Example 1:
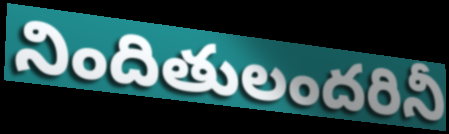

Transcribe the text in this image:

నిందితులందరినీ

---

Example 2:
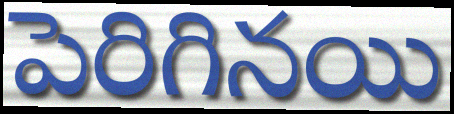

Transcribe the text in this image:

పెరిగినయి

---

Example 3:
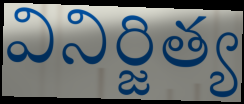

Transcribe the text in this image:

వినిర్జిత్య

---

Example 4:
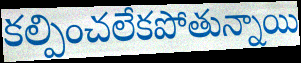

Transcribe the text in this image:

కల్పించలేకపోతున్నాయి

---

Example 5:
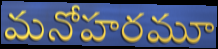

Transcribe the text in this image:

మనోహరమూ